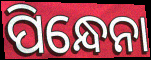
ପିନ୍ଧେନା